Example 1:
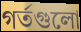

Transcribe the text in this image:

গর্তগুলো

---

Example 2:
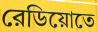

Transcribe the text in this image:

রেডিয়োতে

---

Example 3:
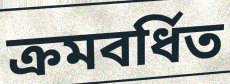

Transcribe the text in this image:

ক্রমবর্ধিত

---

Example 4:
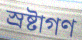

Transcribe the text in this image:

স্রষ্টাগণ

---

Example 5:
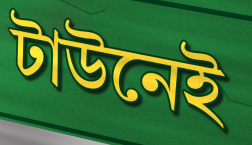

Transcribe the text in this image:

টাউনেই